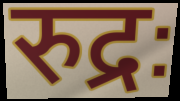
रुद्रः